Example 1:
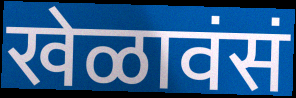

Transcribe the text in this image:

खेळावंसं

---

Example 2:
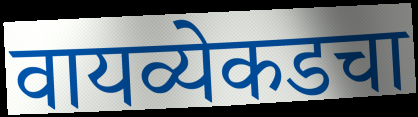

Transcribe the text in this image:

वायव्येकडचा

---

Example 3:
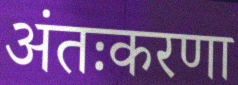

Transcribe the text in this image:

अंतःकरणा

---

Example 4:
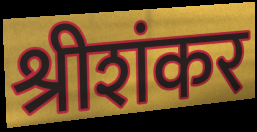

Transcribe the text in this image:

श्रीशंकर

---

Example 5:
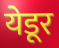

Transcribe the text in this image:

येडूर